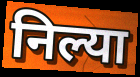
निल्या